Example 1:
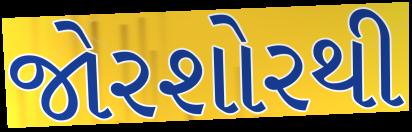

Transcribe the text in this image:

જોરશોરથી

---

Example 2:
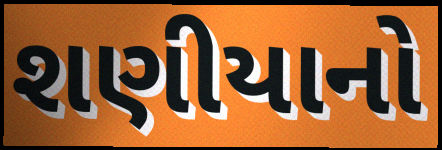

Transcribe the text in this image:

શણીયાનો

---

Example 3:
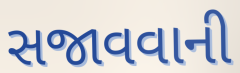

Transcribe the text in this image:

સજાવવાની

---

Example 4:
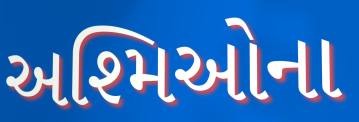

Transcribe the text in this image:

અશ્મિઓના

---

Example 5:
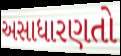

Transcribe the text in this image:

અસાધારણતો